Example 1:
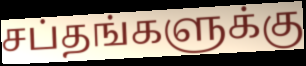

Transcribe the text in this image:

சப்தங்களுக்கு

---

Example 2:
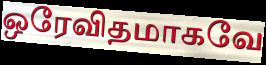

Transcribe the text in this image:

ஒரேவிதமாகவே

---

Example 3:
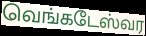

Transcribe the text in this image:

வெங்கடேஸ்வர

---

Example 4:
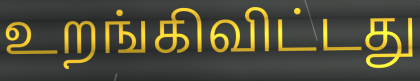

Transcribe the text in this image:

உறங்கிவிட்டது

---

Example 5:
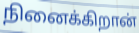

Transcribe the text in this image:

நினைக்கிறான்